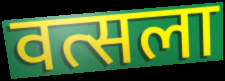
वत्सला